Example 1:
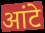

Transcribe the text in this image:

आंटे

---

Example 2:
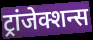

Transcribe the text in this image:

ट्रांजेक्शन्स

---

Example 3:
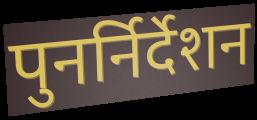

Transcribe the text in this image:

पुनर्निर्देशन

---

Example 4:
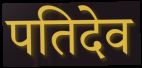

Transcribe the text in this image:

पतिदेव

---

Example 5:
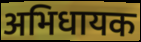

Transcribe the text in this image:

अभिधायक